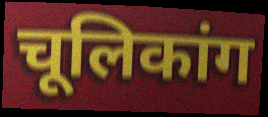
चूलिकांग